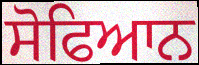
ਸੋਫਿਆਨ